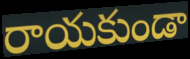
రాయకుండా